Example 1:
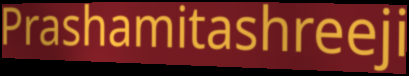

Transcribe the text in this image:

Prashamitashreeji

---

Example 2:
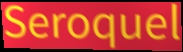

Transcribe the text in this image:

Seroquel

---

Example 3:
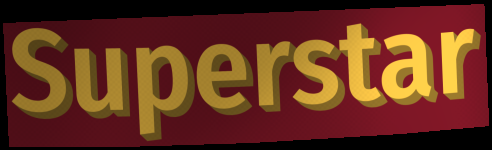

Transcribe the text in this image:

Superstar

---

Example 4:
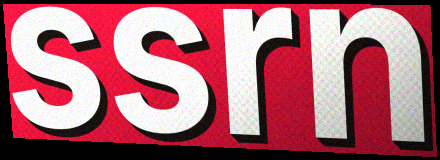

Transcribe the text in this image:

ssrn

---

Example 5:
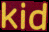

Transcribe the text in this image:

kid